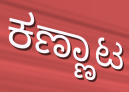
ಕಣ್ಣಾಟ